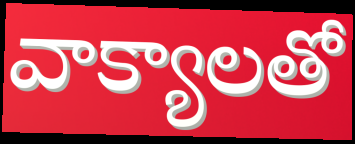
వాక్యాలతో